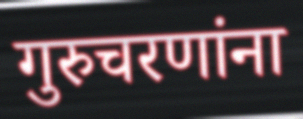
गुरुचरणांना